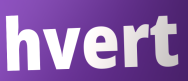
hvert